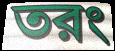
তরং